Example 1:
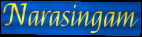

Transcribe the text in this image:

Narasingam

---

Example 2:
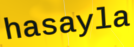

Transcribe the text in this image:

hasayla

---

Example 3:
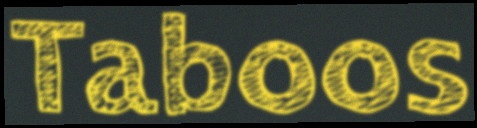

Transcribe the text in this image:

Taboos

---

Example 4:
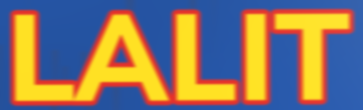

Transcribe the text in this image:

LALIT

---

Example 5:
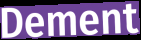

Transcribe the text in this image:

Dement